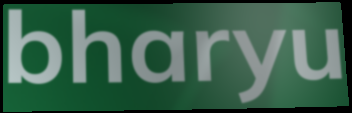
bharyu